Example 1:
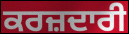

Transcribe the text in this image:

ਕਰਜ਼ਦਾਰੀ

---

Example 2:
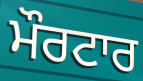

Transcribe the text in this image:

ਮੌਰਟਾਰ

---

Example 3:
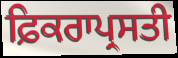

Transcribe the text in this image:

ਫ਼ਿਕਰਾਪ੍ਰਸਤੀ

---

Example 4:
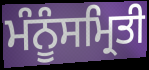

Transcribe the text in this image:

ਮੰਨੂੰਸਮ੍ਰਿਤੀ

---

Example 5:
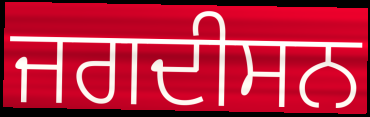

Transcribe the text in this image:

ਜਗਦੀਸਨ